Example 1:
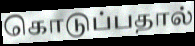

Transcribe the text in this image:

கொடுப்பதால்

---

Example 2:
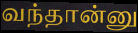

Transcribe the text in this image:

வந்தான்னு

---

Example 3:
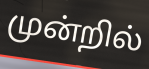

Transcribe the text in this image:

முன்றில்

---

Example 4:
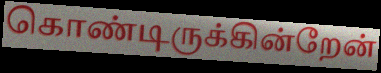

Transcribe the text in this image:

கொண்டிருக்கின்றேன்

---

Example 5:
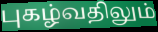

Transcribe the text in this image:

புகழ்வதிலும்